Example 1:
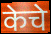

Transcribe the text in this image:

केचे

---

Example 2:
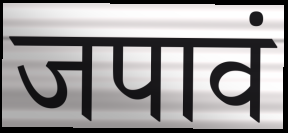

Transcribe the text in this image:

जपावं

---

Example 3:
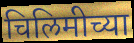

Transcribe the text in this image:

चिलिमीच्या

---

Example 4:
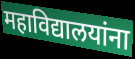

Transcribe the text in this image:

महाविद्यालयांना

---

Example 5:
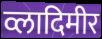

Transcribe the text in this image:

व्लादिमीर